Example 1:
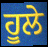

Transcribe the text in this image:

ਹੂਲੇ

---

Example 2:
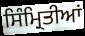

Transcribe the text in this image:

ਸਿੰਮ੍ਰਿਤੀਆਂ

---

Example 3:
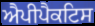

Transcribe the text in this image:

ਐਪੀਪੈਕਟਿਸ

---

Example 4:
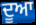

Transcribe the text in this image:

ਦੂਆ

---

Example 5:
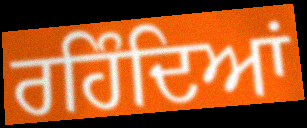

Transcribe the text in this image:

ਰਹਿੰਦਿਆਂ